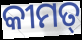
କୀମତ୍